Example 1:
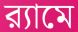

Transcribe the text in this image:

র‍্যামে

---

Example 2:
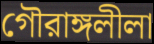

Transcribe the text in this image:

গৌরাঙ্গলীলা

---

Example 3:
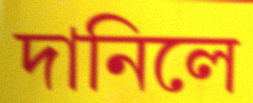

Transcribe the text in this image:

দানিলে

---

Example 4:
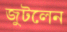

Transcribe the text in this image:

জুটলেন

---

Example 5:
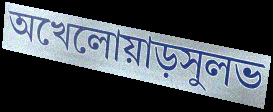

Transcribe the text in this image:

অখেলোয়াড়সুলভ